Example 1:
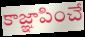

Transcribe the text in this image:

కాజ్ఞాపించే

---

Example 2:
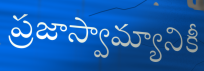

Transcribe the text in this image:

ప్రజాస్వామ్యానికీ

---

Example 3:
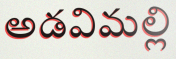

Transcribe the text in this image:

అడవిమల్లి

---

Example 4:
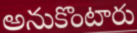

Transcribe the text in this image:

అనుకొంటారు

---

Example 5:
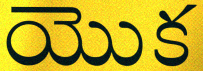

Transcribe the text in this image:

యొక